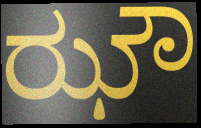
ಝೌ